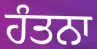
ਹੰਤਨਾ